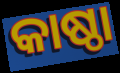
କାଷ୍ଠା